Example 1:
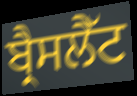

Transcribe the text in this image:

ਬ੍ਰੈਸਲੈੱਟ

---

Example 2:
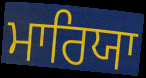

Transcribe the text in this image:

ਮਾਰਿਯਾ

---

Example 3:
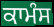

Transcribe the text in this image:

ਕਾਮੰਸ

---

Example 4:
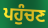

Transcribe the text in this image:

ਪਹੁੰਚਣ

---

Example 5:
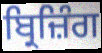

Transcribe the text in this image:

ਬ੍ਰਿਜ਼ਿੰਗ